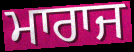
ਮਾਰਾਜ